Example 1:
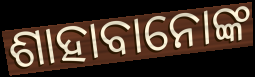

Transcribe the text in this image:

ଶାହାବାନୋଙ୍କ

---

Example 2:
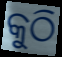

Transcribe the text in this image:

କୁଠି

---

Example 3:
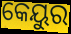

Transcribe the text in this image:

କେୟୁର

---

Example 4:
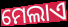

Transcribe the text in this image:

ମେଲାଏ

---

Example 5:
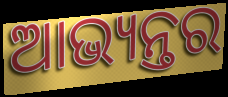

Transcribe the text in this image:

ଆଭ୍ୟନ୍ତର